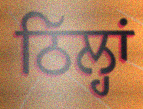
ਠਿੱਲ੍ਹਾਂ